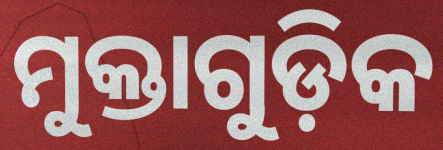
ମୁକ୍ତାଗୁଡ଼ିକ